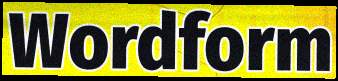
Wordform